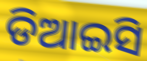
ଡିଆଇସି